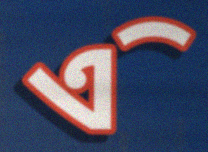
ଏି